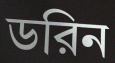
ডরিন